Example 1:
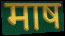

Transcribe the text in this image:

माष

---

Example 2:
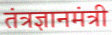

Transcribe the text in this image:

तंत्रज्ञानमंत्री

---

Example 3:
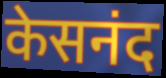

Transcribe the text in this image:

केसनंद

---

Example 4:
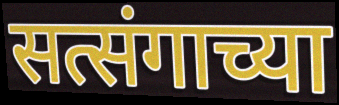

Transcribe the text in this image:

सत्संगाच्या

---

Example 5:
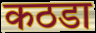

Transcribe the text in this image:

कठडा